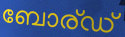
ബോര്ഡ്